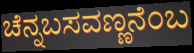
ಚೆನ್ನಬಸವಣ್ಣನೆಂಬ